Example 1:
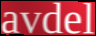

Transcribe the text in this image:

avdel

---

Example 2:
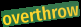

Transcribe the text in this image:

overthrow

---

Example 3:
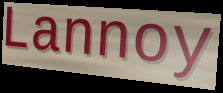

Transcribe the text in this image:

Lannoy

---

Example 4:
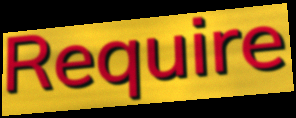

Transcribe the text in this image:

Require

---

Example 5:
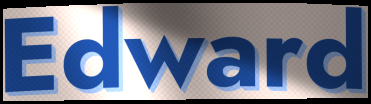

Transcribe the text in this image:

Edward